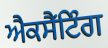
ਐਕਸੈਂਟਿੰਗ